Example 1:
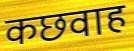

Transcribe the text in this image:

कछवाह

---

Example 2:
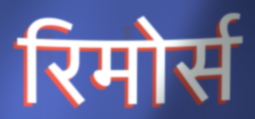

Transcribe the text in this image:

रिमोर्स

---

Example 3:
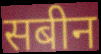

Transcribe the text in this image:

सबीन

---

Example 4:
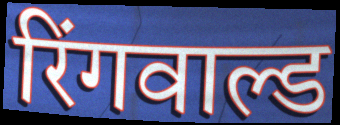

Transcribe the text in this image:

रिंगवाल्ड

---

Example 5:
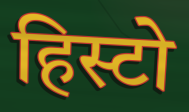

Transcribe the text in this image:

हिस्टो